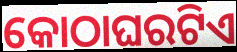
କୋଠାଘରଟିଏ